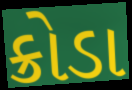
ક્રોડા